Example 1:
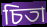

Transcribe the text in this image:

চিতা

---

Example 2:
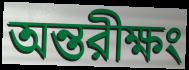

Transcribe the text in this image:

অন্তরীক্ষং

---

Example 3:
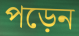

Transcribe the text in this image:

পড়েন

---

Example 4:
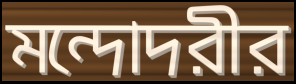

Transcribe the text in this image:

মন্দোদরীর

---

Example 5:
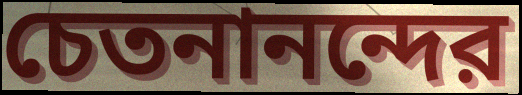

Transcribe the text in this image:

চেতনানন্দের